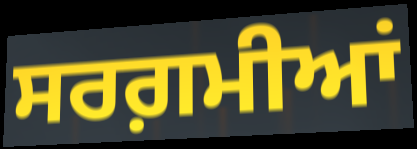
ਸਰਗ਼ਮੀਆਂ